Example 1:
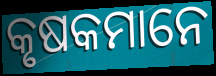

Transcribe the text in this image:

କୃଷକମାନେ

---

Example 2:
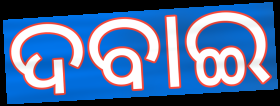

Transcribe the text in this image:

ଦବାଇ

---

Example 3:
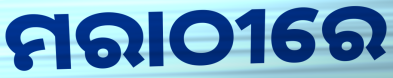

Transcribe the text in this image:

ମରାଠୀରେ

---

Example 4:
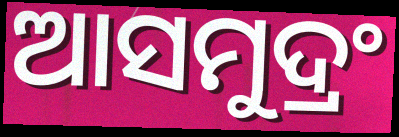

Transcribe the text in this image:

ଆସମୁଦ୍ରଂ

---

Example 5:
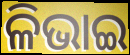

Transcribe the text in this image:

ଳିଭାଇ